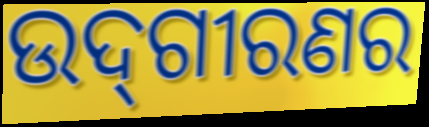
ଉଦ୍‌ଗୀରଣର